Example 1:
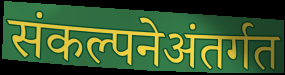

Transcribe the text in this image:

संकल्पनेअंतर्गत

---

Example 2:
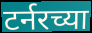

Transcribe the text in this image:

टर्नरच्या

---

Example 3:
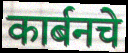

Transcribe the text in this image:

कार्बनचे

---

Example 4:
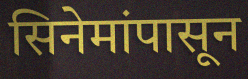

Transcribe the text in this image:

सिनेमांपासून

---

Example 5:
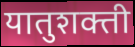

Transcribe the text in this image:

यातुशक्ती